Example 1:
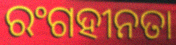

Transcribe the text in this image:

ରଂଗହୀନତା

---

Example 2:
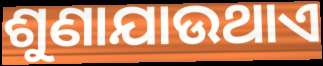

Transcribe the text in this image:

ଶୁଣାଯାଉଥାଏ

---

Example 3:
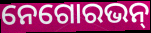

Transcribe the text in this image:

ନେଗୋରଭନ୍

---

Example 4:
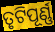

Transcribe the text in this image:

ତୃଟିପୂର୍ଣ୍ଣ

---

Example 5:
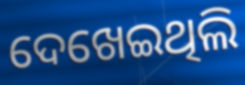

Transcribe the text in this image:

ଦେଖେଇଥିଲି